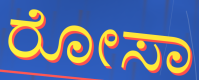
ರೋಸಾ